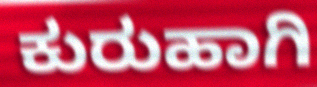
ಕುರುಹಾಗಿ